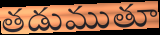
తడుముతూ